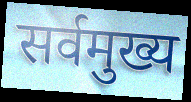
सर्वमुख्य